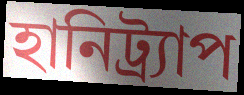
হানিট্র্যাপ